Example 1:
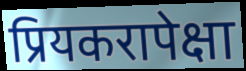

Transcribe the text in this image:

प्रियकरापेक्षा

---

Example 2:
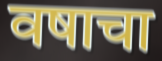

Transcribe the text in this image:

वषाचा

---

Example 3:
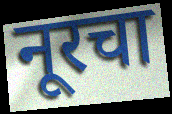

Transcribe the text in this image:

नूरचा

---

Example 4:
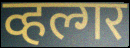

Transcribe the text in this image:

व्हल्गर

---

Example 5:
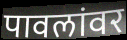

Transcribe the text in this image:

पावलांवर